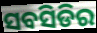
ସବସିଡିର